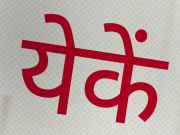
येकें